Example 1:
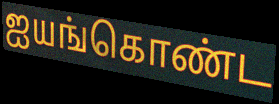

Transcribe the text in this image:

ஐயங்கொண்ட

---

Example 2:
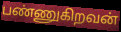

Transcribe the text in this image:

பண்ணுகிறவன்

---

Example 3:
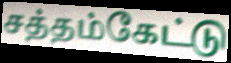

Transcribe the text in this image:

சத்தம்கேட்டு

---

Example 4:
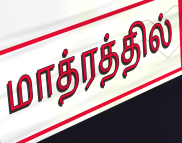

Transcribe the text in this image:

மாத்ரத்தில்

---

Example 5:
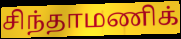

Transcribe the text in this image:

சிந்தாமணிக்